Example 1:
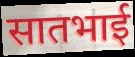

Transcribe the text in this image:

सातभाई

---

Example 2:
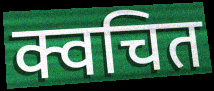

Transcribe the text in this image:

क्वचित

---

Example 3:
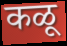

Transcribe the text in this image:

कळू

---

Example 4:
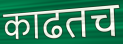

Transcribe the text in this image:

काढतच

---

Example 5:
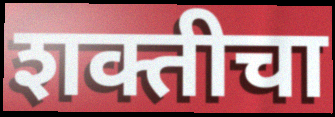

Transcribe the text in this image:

शक्तीचा